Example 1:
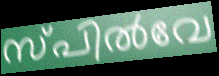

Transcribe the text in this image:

സ്പിൽവേ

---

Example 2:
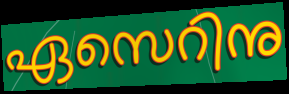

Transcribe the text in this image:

ഏസെറിനു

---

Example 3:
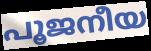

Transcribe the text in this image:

പൂജനീയ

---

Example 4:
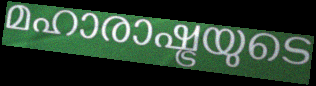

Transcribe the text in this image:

മഹാരാഷ്ട്രയുടെ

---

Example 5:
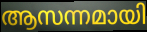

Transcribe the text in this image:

ആസന്നമായി